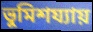
ভুমিশয্যায়